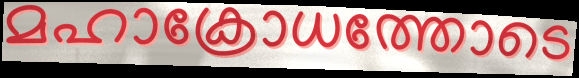
മഹാക്രോധത്തോടെ